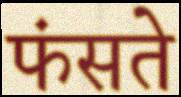
फंसते